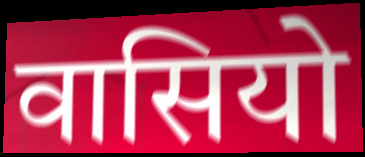
वासियो